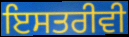
ਇਸਤਰੀਵੀ